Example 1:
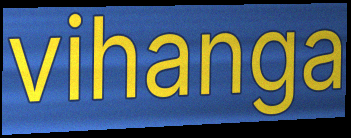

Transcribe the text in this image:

vihanga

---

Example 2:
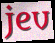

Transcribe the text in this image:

jeu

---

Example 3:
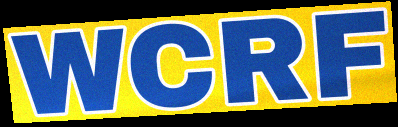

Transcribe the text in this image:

WCRF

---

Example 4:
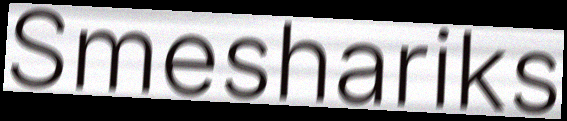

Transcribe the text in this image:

Smeshariks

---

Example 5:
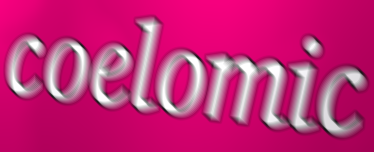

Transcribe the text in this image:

coelomic